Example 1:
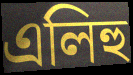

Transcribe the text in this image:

এলিহু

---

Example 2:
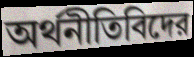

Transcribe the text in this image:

অর্থনীতিবিদের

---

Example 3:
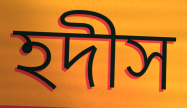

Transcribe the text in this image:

হদীস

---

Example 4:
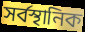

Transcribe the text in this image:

সর্বস্থানিক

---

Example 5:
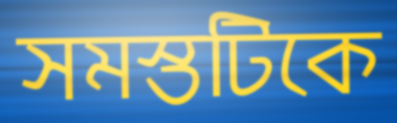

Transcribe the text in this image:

সমস্তটিকে